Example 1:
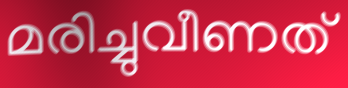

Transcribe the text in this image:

മരിച്ചുവീണത്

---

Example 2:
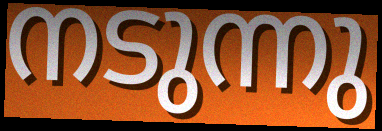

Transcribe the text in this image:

നടുന്നു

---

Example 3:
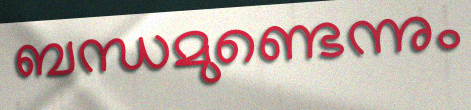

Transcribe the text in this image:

ബന്ധമുണ്ടെന്നും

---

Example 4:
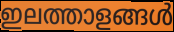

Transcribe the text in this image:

ഇലത്താളങ്ങൾ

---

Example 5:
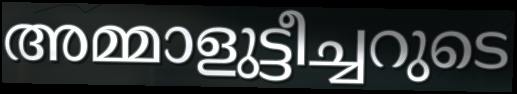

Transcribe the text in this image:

അമ്മാളുട്ടീച്ചറുടെ